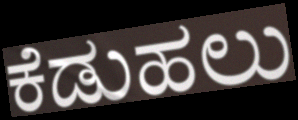
ಕೆಡುಹಲು